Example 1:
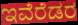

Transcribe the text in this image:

ಇವೆರೆಡರ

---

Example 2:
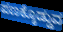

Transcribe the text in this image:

ಪಣಕ್ಕೊಡ್ಡುವ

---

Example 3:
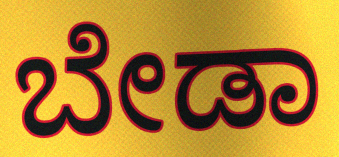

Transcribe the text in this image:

ಬೇಡಾ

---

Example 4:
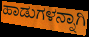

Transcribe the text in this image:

ಹಾಡುಗಳನ್ನಾಗಿ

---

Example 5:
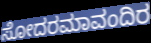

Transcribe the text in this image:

ಸೋದರಮಾವಂದಿರ